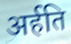
अर्हति